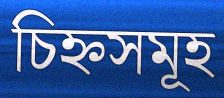
চিহ্নসমূহ